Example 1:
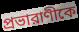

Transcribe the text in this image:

প্রভারাণীকে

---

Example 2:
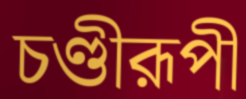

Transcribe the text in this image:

চণ্ডীরূপী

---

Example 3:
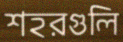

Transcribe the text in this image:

শহরগুলি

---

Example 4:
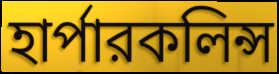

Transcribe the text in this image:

হার্পারকলিন্স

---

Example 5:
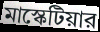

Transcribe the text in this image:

মাস্কেটিয়ার